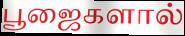
பூஜைகளால்